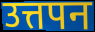
उत्तपन